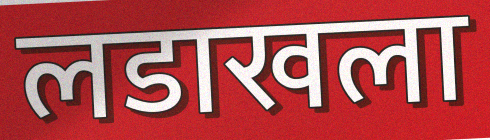
लडाखला